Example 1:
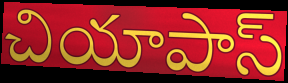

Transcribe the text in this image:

చియాపాస్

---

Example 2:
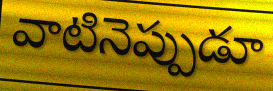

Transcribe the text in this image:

వాటినెప్పుడూ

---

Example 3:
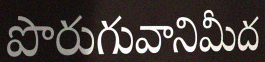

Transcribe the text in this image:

పొరుగువానిమీద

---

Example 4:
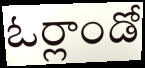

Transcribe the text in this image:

ఓర్లాండో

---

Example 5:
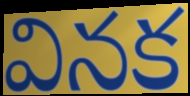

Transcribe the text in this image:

వినక